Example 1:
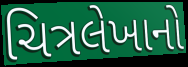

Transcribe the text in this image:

ચિત્રલેખાનો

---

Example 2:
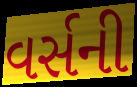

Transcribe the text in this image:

વર્સની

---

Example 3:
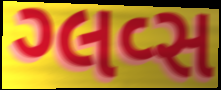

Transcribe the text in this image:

ગ્લવ્સ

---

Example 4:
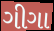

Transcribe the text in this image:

ગીગા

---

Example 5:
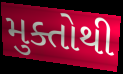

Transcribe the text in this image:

મુક્તોથી